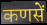
कणसें